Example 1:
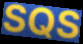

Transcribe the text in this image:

SQS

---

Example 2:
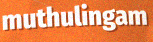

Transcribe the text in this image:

muthulingam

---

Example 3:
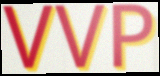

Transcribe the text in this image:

VVP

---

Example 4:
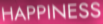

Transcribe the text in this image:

HAPPINESS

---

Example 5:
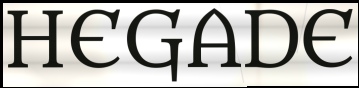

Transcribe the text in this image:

HEGADE